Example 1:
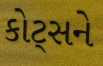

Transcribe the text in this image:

કોટ્સને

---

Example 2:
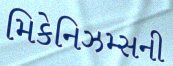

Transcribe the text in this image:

મિકેનિઝમ્સની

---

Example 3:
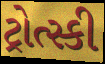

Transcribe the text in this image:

ટ્રોત્સ્કી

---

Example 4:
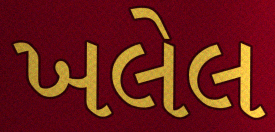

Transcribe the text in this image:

ખલેલ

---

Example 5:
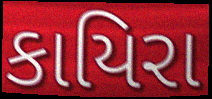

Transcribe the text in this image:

કાયિરા